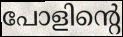
പോളിന്റെ